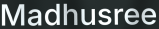
Madhusree